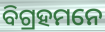
ବିଗ୍ରହମନେ